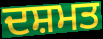
ਦਸ਼ਮਤ